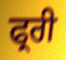
ਫ੍ਰਰੀ